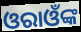
ଓରାଓଁଙ୍କ